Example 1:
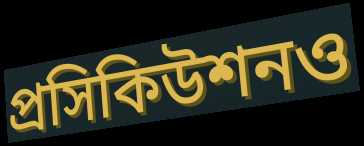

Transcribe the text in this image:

প্রসিকিউশনও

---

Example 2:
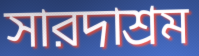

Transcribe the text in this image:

সারদাশ্রম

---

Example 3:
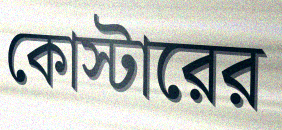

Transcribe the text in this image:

কোস্টারের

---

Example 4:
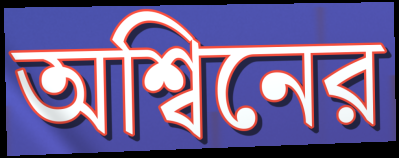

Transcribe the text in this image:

অশ্বিনের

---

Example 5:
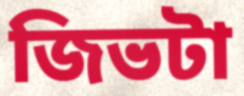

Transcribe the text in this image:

জিভটা